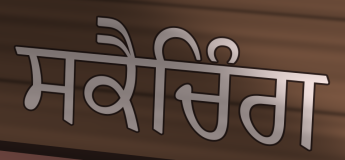
ਸਕੈਚਿੰਗ